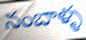
నంబాళ్ళ